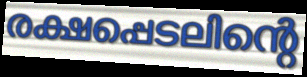
രക്ഷപ്പെടലിന്റെ